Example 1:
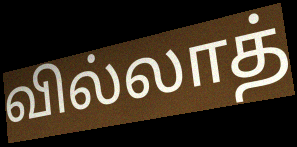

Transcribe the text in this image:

வில்லாத்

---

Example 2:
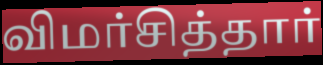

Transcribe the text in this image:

விமர்சித்தார்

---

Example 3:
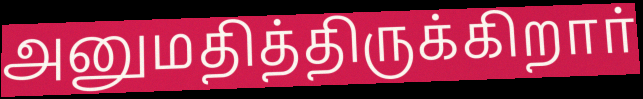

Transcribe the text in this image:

அனுமதித்திருக்கிறார்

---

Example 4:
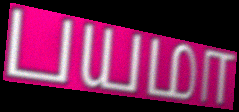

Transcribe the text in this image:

பயமா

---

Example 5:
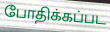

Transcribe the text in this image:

போதிக்கப்பட